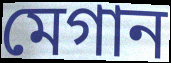
মেগান